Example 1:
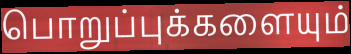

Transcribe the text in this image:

பொறுப்புக்களையும்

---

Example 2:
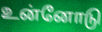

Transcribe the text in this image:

உன்னோடு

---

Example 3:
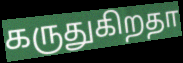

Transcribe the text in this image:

கருதுகிறதா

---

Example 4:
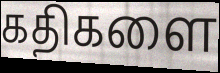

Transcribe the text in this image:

கதிகளை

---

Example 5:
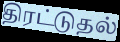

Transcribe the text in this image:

திரட்டுதல்